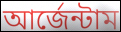
আর্জেন্টাম